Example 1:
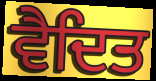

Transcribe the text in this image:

ਵੈਦਿਤ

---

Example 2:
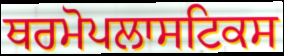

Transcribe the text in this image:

ਥਰਮੋਪਲਾਸਟਿਕਸ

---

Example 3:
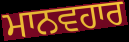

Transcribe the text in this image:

ਮਾਨਵਹਾਰ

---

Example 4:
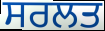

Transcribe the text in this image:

ਸਰਲਤ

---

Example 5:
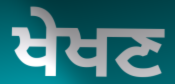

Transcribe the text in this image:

ਖੇਖਣ